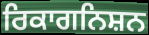
ਰਿਕਾਗਨਿਸ਼ਨ